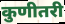
कुणीतरी